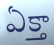
ఏక్తా